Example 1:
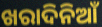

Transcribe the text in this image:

ଖରାଦିନିଆଁ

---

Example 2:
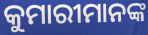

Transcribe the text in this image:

କୁମାରୀମାନଙ୍କ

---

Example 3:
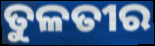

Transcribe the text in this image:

ତୁଳତୀର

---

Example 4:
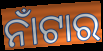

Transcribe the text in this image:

ନାଁଟାର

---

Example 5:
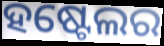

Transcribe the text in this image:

ହଷ୍ଟେଲର